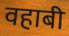
वहाबी